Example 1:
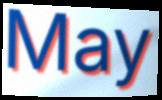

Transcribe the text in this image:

May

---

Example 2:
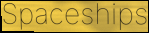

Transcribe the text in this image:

Spaceships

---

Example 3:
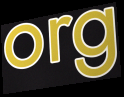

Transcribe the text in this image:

org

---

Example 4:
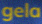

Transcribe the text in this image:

gela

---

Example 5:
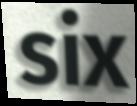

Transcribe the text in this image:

six